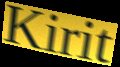
Kirit